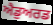
ਐਡੁਅਰਡ